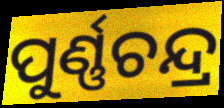
ପୁର୍ଣ୍ଣଚନ୍ଦ୍ର